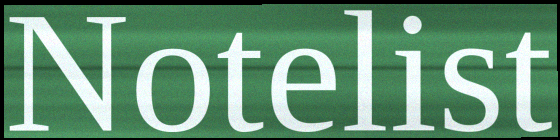
Notelist